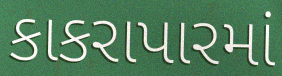
કાકરાપારમાં